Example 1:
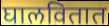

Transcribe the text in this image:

घालवितात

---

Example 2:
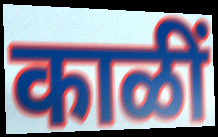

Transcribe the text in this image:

काळीं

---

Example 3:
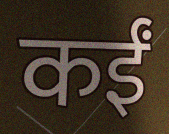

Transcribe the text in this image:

कईं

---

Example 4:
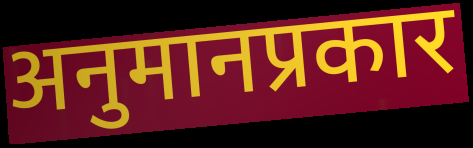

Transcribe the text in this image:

अनुमानप्रकार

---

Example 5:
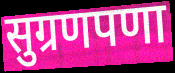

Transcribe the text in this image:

सुग्रणपणा